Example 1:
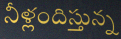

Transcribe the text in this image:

నీళ్లందిస్తున్న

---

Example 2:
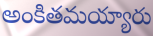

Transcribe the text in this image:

అంకితమయ్యారు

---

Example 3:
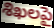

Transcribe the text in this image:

శిఖలపై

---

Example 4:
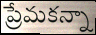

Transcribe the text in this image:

ప్రేమకన్నా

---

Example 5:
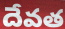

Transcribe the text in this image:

దేవత